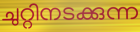
ചുറ്റിനടക്കുന്ന